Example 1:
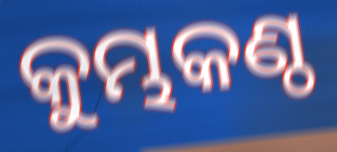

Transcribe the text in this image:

କୁମ୍ଭକଣ୍ଠ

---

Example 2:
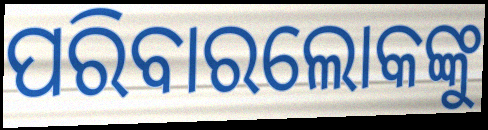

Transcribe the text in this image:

ପରିବାରଲୋକଙ୍କୁ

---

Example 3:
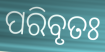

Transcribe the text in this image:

ପରିବୃତଃ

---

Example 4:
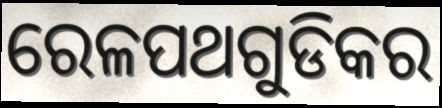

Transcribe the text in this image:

ରେଳପଥଗୁଡିକର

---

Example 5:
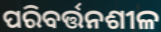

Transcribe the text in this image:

ପରିବର୍ତ୍ତନଶୀଳ